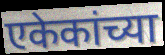
एकेकांच्या